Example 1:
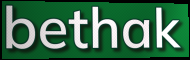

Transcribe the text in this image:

bethak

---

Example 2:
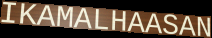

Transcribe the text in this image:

IKAMALHAASAN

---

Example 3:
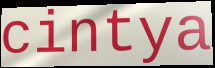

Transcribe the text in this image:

cintya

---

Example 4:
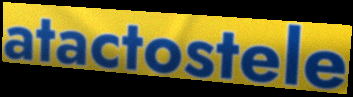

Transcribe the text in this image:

atactostele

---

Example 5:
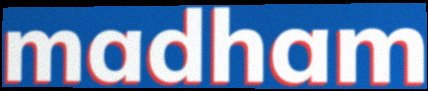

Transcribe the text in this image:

madham